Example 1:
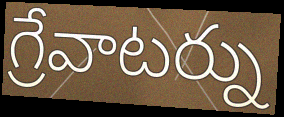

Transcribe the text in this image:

గ్రేవాటర్ను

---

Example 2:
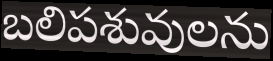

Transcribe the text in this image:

బలిపశువులను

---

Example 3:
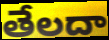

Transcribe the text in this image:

తేలదా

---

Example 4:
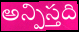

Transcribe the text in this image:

అన్పిస్తది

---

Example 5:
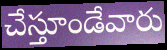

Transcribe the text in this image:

చేస్తూండేవారు